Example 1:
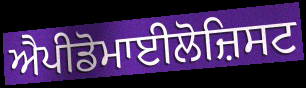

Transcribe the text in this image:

ਐਪੀਡੋਮਾਈਲੋਜ਼ਿਸਟ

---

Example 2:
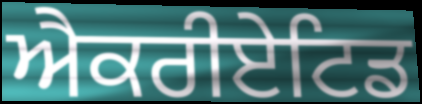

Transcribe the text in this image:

ਐਕਰੀਏਟਿਡ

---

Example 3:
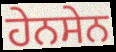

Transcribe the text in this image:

ਹੇਨਸੇਨ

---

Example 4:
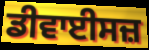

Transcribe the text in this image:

ਡੀਵਾਈਸਜ਼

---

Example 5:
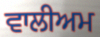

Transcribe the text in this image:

ਵਾਲੀਅਮ